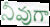
నీవుగా